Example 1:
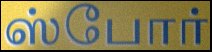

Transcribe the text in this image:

ஸ்போர்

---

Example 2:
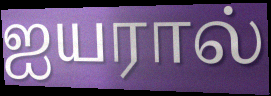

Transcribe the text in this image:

ஐயரால்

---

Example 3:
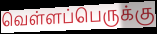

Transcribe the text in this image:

வெள்ளப்பெருக்கு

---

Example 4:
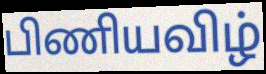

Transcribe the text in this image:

பிணியவிழ்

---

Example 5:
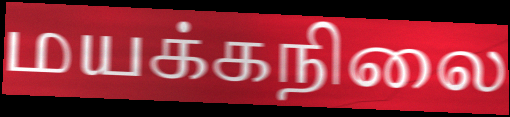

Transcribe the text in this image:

மயக்கநிலை